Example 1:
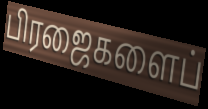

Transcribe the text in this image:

பிரஜைகளைப்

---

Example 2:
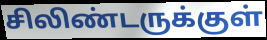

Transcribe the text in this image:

சிலிண்டருக்குள்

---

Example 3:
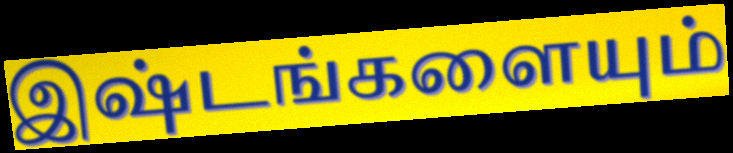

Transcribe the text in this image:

இஷ்டங்களையும்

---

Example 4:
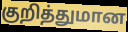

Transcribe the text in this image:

குறித்துமான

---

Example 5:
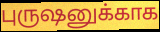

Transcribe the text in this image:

புருஷனுக்காக